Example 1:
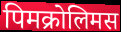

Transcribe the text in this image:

पिमक्रोलिमस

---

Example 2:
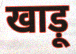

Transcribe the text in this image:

खाड़ू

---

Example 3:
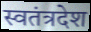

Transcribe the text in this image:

स्वतंत्रदेश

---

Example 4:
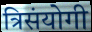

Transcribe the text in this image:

त्रिसंयोगी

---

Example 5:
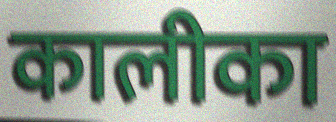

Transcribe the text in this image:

कालीका